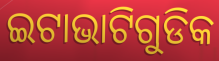
ଇଟାଭାଟିଗୁଡିକ